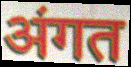
अंगत